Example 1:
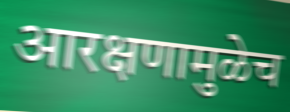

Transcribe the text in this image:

आरक्षणामुळेच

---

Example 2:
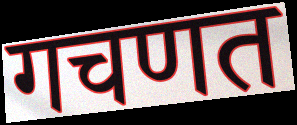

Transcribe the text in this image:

गचणत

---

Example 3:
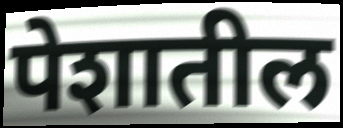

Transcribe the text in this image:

पेशातील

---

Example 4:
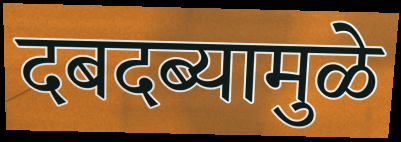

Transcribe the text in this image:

दबदब्यामुळे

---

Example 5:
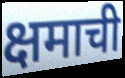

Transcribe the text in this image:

क्षमाची